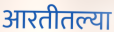
आरतीतल्या